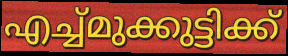
എച്ച്മുക്കുട്ടിക്ക്